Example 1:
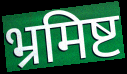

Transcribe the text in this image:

भ्रमिष्ट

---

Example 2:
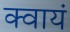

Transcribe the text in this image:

क्वायं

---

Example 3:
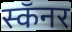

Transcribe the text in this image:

स्कॅनर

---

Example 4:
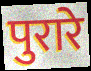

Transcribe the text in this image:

पुरारे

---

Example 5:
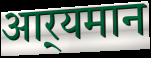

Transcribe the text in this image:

आर्यमान